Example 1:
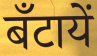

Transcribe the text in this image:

बँटायें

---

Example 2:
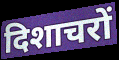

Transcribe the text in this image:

दिशाचरों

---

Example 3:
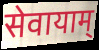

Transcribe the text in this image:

सेवायाम्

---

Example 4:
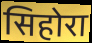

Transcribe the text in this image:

सिहोरा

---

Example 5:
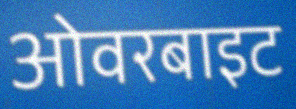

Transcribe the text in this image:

ओवरबाइट